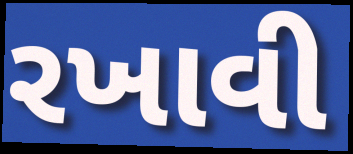
રખાવી